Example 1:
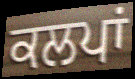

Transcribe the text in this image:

ਕਲਪਾਂ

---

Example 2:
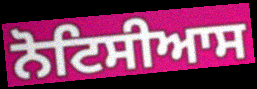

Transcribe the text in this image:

ਨੋਟਿਸੀਆਸ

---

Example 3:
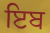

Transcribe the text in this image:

ਇਬ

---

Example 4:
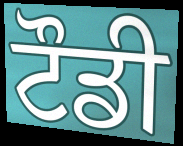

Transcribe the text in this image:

ਟੌਡੀ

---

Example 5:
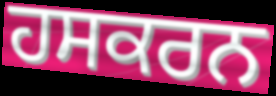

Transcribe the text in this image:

ਹਸਕਰਨ